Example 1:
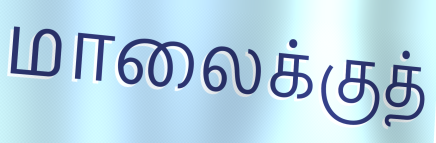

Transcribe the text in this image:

மாலைக்குத்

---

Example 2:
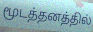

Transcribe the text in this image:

மூடத்தனத்தில்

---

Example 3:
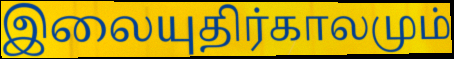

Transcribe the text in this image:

இலையுதிர்காலமும்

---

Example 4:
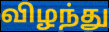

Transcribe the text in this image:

விழந்து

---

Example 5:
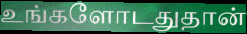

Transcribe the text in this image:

உங்களோடதுதான்